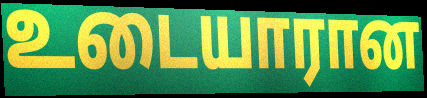
உடையாரான